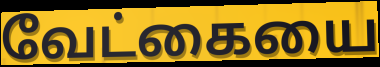
வேட்கையை